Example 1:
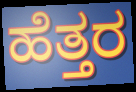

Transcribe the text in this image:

ಹೆತ್ತರ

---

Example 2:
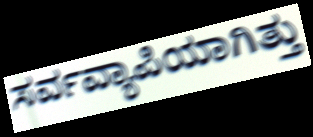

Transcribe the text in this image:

ಸರ್ವವ್ಯಾಪಿಯಾಗಿತ್ತು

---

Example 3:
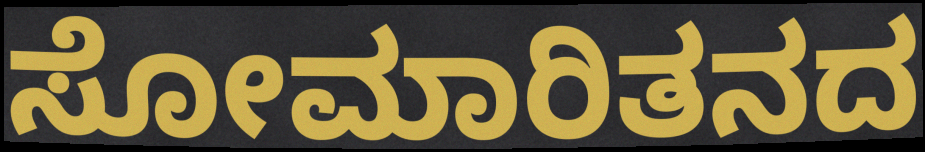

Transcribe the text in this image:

ಸೋಮಾರಿತನದ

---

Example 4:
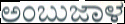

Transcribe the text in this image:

ಅಂಬುಜಾಳ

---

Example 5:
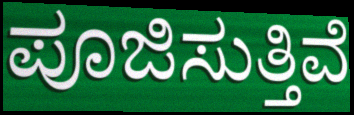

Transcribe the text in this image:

ಪೂಜಿಸುತ್ತಿವೆ